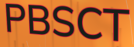
PBSCT